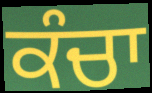
ਕੰਚਾ